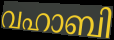
വഹാബി